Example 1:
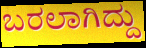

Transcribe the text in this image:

ಬರಲಾಗಿದ್ದು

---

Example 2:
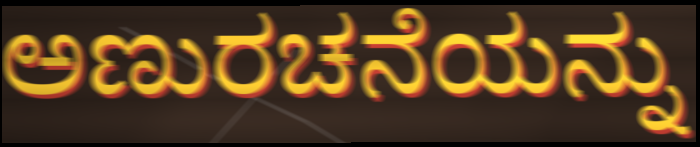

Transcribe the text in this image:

ಅಣುರಚನೆಯನ್ನು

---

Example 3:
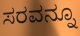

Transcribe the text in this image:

ಸರವನ್ನೂ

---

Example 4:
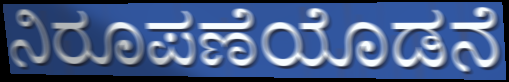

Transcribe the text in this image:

ನಿರೂಪಣೆಯೊಡನೆ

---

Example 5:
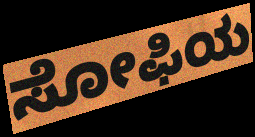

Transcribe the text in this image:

ಸೋಫಿಯ